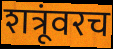
शत्रूंवरच